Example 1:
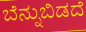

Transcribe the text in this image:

ಬೆನ್ನುಬಿಡದೆ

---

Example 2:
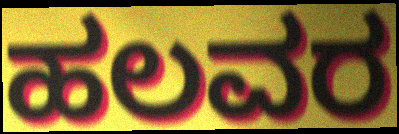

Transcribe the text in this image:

ಹಲವರ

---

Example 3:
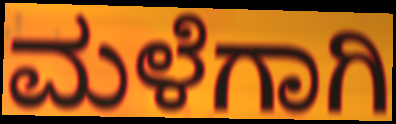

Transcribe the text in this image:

ಮಳೆಗಾಗಿ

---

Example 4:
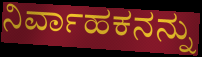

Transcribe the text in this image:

ನಿರ್ವಾಹಕನನ್ನು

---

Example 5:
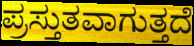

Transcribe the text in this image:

ಪ್ರಸ್ತುತವಾಗುತ್ತದೆ